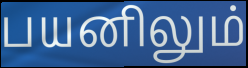
பயனிலும்